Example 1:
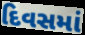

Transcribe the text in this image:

દિવસમાં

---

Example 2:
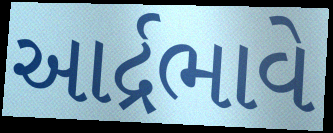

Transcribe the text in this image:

આર્દ્રભાવે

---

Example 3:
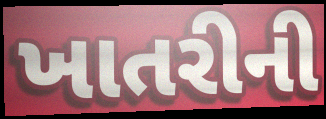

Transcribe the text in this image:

ખાતરીની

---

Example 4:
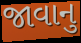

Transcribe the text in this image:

જાવાનુ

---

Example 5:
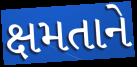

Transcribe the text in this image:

ક્ષમતાને